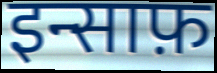
इन्साफ़